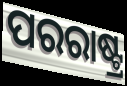
ପରରାଷ୍ଟ୍ର